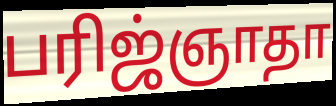
பரிஜ்ஞாதா